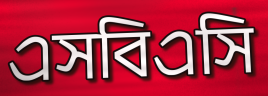
এসবিএসি